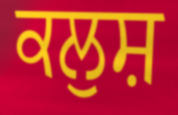
ਕਲੁਸ਼